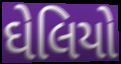
ઘેલિયો